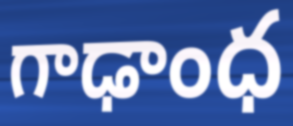
గాఢాంధ